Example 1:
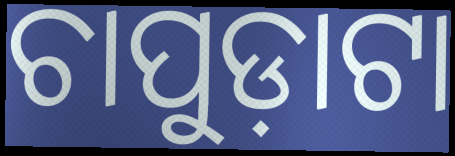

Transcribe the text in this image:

ଚାପୁଡ଼ାଟା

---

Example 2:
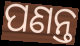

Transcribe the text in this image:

ପଣନ୍ତ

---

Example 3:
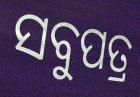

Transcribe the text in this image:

ସବୁପତ୍ର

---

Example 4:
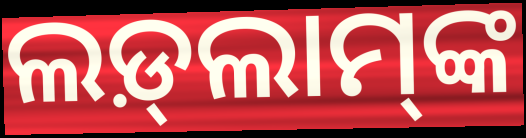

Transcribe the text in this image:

ଲଡ଼୍‍ଲାମ୍‍ଙ୍କ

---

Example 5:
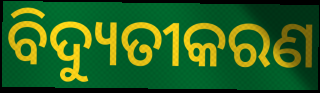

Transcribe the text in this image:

ବିଦ୍ୟୁତୀକରଣ